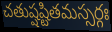
చతుష్షష్టితమస్సర్గః